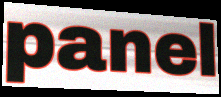
panel